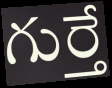
గుర్తే